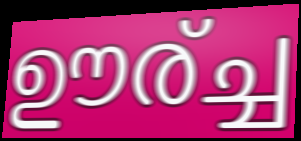
ഊര്ച്ച